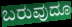
ಬರುವುದೂ